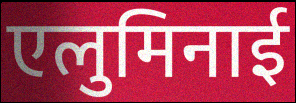
एलुमिनाई